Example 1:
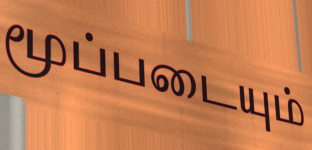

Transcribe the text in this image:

மூப்படையும்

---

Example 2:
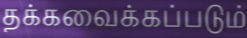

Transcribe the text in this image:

தக்கவைக்கப்படும்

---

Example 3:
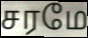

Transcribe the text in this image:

சரமே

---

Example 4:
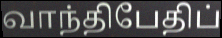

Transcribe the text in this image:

வாந்திபேதிப்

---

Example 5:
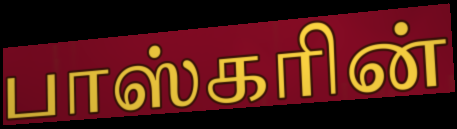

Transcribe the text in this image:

பாஸ்கரின்